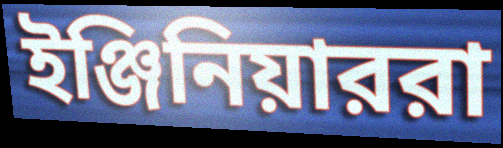
ইঞ্জিনিয়াররা